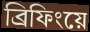
ব্রিফিংয়ে